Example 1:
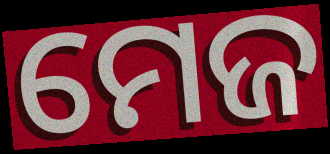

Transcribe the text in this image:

ମେଜ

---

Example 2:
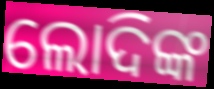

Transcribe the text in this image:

ଲୋଦିଙ୍କ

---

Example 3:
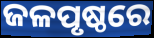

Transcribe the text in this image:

ଜଳପୃଷ୍ଠରେ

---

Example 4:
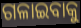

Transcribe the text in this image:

ଗଳାଇବାକୁ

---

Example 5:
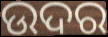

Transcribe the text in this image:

ଉଦର